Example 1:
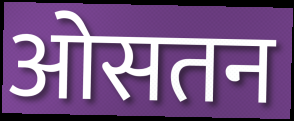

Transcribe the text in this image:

ओसतन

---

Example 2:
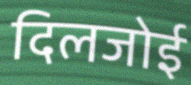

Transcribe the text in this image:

दिलजोई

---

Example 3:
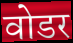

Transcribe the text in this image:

वोडर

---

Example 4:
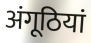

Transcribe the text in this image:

अंगूठियां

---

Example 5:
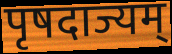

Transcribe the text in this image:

पृषदाज्यम्